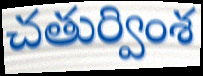
చతుర్వింశ